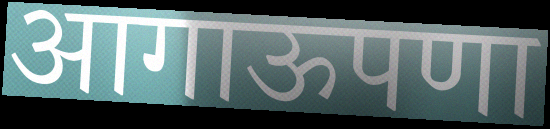
आगाऊपणा